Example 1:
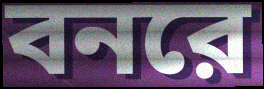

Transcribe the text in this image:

বনরে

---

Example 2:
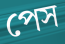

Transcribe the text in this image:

পেস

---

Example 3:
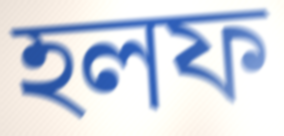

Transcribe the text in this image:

হলফ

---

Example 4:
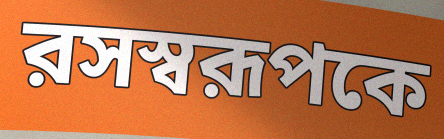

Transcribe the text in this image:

রসস্বরূপকে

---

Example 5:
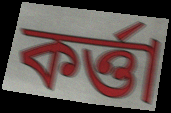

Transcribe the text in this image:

কর্ত্তা